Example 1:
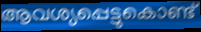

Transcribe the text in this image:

ആവശ്യപ്പെട്ടുകൊണ്ട്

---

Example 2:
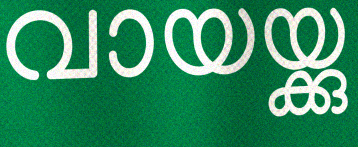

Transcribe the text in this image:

വായയ്ക്കു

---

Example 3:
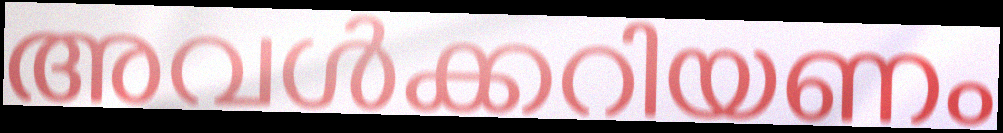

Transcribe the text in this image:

അവൾക്കറിയണം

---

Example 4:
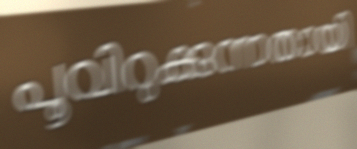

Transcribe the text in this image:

പൂവിറുക്കുന്നതായി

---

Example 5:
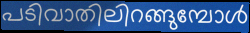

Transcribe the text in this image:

പടിവാതിലിറങ്ങുമ്പോൾ